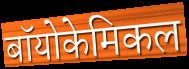
बॉयोकेमिकल